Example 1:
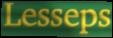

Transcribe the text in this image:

Lesseps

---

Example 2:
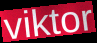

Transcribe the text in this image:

viktor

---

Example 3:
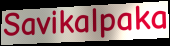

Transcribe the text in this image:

Savikalpaka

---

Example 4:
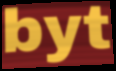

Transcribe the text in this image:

byt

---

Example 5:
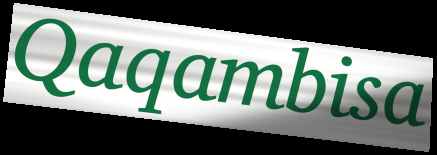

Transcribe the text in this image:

Qaqambisa